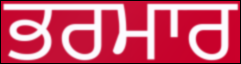
ਭਰਮਾਰ